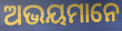
ଅଭୟମାନେ